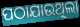
ପଠାଯାଉଥିଲା